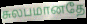
சுலபமானதே